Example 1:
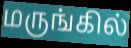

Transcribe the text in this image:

மருங்கில்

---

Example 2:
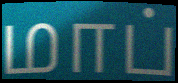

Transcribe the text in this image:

மாப்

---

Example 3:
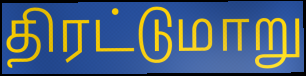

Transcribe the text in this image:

திரட்டுமாறு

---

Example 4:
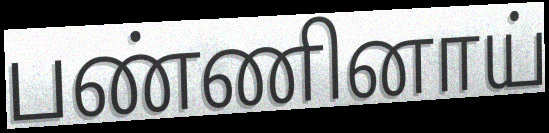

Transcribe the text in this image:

பண்ணினாய்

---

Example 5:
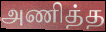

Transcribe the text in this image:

அணித்த